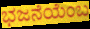
ಭಜನೆಯೆಂಬ